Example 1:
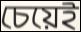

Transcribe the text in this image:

চেয়েই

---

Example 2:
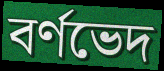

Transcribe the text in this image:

বর্ণভেদ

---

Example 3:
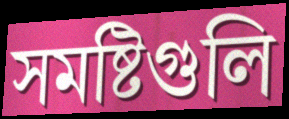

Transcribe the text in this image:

সমষ্টিগুলি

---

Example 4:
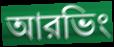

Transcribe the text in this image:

আরভিং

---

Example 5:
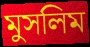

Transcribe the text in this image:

মুসলিম